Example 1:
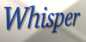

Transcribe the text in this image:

Whisper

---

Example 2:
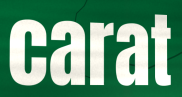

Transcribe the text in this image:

carat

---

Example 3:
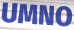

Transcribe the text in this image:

UMNO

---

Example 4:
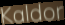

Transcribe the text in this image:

Kaldor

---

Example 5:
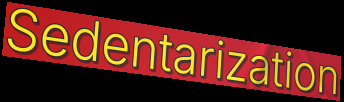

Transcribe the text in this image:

Sedentarization